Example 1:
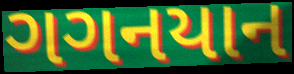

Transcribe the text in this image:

ગગનયાન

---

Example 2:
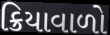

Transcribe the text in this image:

ક્રિયાવાળો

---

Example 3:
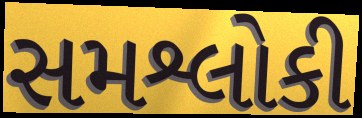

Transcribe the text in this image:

સમશ્લોકી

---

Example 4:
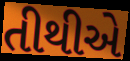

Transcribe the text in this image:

તીથીએ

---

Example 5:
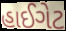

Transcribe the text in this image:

હાઈગેટ